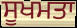
ਸੂਖਮਤਾ